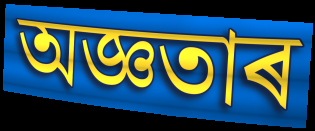
অজ্ঞতাৰ